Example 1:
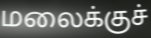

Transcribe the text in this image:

மலைக்குச்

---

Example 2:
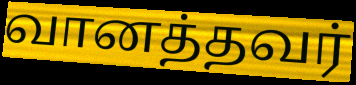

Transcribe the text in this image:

வானத்தவர்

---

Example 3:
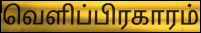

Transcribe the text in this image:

வெளிப்பிரகாரம்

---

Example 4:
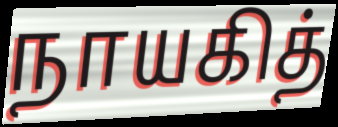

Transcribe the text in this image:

நாயகித்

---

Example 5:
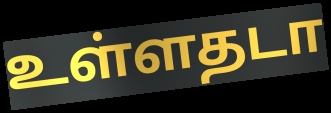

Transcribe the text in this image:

உள்ளதடா